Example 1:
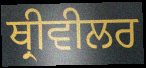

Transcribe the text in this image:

ਥ੍ਰੀਵੀਲਰ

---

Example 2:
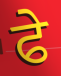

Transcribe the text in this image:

ਫੇ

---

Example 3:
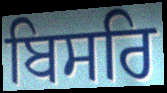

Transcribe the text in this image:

ਬਿਸਰਿ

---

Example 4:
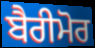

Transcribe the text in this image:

ਬੈਰੀਮੋਰ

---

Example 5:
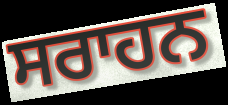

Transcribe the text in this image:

ਸਰਾਹਨ